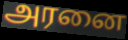
அரனை